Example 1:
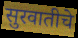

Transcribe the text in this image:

सुरवातीचे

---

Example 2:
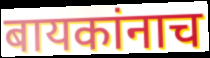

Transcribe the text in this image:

बायकांनाच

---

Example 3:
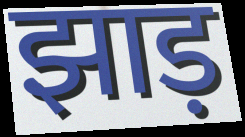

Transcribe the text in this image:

झाड़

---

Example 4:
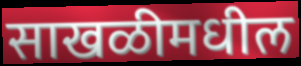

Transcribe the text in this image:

साखळीमधील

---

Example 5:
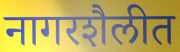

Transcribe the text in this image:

नागरशैलीत